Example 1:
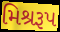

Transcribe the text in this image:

મિશ્રરૂપ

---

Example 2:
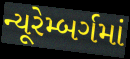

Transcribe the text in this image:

ન્યૂરેમ્બર્ગમાં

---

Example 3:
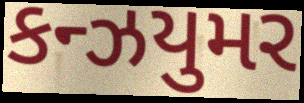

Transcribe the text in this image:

કન્ઝયુમર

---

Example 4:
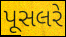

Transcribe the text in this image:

પૂસલરે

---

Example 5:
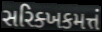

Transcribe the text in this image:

સરિક્ખકમત્તં